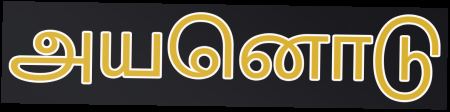
அயனொடு